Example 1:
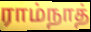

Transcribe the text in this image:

ராம்நாத்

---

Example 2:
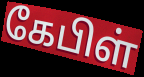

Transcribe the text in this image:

கேபிள்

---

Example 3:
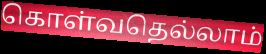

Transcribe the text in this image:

கொள்வதெல்லாம்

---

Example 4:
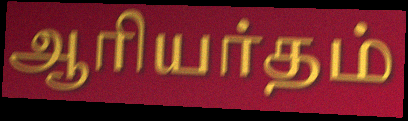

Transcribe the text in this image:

ஆரியர்தம்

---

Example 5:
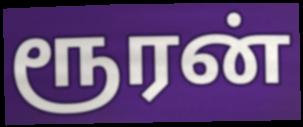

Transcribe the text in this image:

ரூரன்